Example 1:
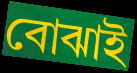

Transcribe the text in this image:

বোঝাই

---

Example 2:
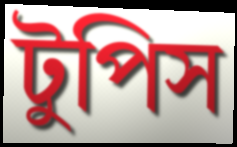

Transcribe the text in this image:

টুপিস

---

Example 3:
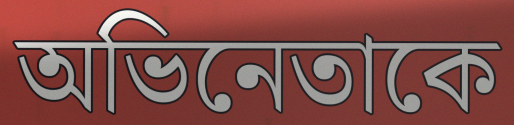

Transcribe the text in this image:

অভিনেতাকে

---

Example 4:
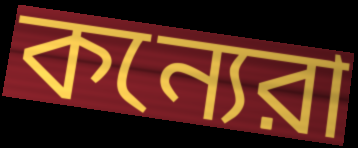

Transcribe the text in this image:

কন্যেরা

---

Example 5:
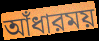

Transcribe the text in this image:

আঁধারময়